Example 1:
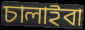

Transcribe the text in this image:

চালাইবা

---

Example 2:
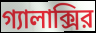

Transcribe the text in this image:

গ্যালাক্সির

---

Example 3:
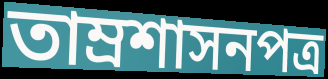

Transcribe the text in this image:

তাম্রশাসনপত্র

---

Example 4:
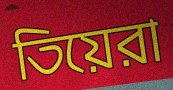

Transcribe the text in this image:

তিয়েরা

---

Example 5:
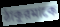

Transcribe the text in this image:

ঠাকুরমাকে